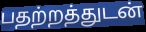
பதற்றத்துடன்